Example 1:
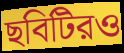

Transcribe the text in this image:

ছবিটিরও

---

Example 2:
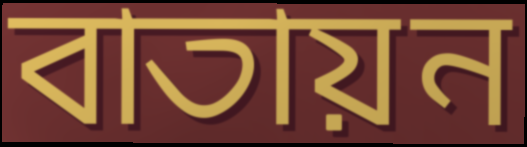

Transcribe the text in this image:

বাতায়ন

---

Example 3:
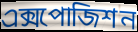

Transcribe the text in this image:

এক্সপোজিশন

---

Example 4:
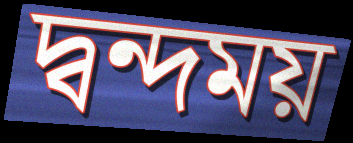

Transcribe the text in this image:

দ্বন্দময়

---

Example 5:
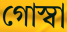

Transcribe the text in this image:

গোস্বা